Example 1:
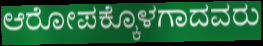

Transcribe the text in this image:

ಆರೋಪಕ್ಕೊಳಗಾದವರು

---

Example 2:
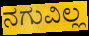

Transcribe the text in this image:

ನಗುವಿಲ್ಲ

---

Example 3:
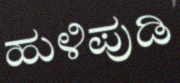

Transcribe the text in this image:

ಹುಳಿಪುಡಿ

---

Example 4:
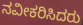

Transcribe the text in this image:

ನವೀಕರಿಸಿದರು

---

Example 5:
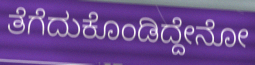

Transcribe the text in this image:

ತೆಗೆದುಕೊಂಡಿದ್ದೇನೋ